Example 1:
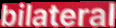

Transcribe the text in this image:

bilateral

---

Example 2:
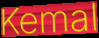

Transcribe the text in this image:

Kemal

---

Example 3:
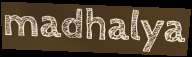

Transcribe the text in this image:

madhalya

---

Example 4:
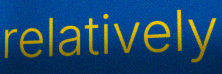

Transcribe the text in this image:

relatively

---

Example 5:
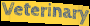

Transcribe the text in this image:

Veterinary